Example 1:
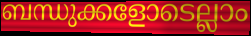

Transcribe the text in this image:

ബന്ധുക്കളോടെല്ലാം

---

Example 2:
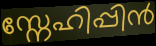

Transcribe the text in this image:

സ്നേഹിപ്പിൻ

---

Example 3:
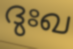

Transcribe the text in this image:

ദുഃഖ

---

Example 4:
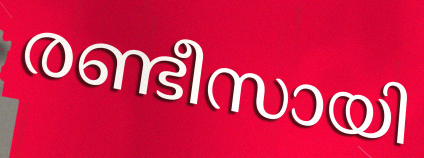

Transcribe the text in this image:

രണ്ടീസായി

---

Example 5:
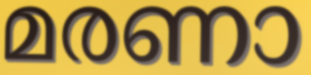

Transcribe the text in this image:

മരണാ